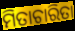
ମିତାଚାରିତା